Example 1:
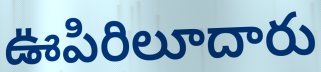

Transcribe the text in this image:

ఊపిరిలూదారు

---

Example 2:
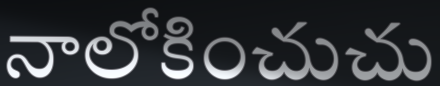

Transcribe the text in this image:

నాలోకించుచు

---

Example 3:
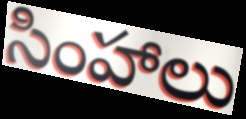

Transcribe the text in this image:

సింహాలు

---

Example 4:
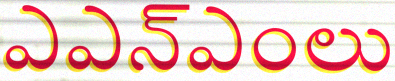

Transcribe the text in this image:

ఎఎన్ఎంలు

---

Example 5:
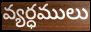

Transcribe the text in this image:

వ్యర్ధములు